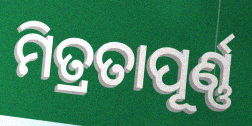
ମିତ୍ରତାପୂର୍ଣ୍ଣ